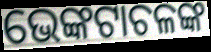
ଭେଙ୍କଟାଚଳଙ୍କ